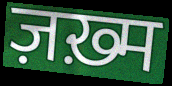
ज़ख़्म